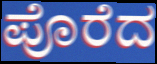
ಪೊರೆದ